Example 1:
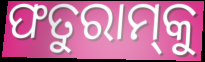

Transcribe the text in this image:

ଫତୁରାମ୍‌କୁ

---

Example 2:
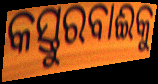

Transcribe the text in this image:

କସ୍ତୁରବାଈକୁ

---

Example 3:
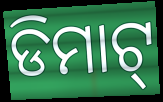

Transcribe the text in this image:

ଡିମାଟ୍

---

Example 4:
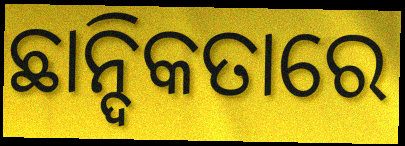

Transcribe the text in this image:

ଛାନ୍ଦିକତାରେ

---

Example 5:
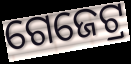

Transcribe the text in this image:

ଗେଜେଟ୍ର